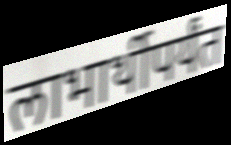
लाभार्थीपर्यंत